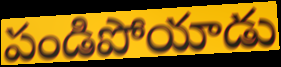
పండిపోయాడు